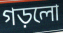
গড়লো